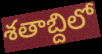
శతాబ్దిలో